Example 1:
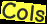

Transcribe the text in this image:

Cols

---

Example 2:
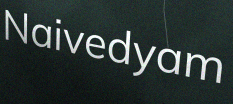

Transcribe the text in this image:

Naivedyam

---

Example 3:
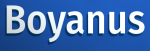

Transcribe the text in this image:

Boyanus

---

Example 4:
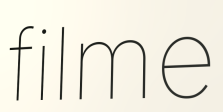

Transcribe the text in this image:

filme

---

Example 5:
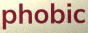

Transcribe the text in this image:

phobic